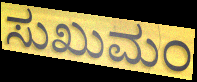
ಸುಖುಮಂ